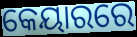
କେୟାରରେ